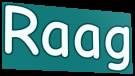
Raag